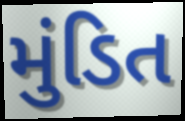
મુંડિત